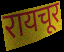
रायचूर